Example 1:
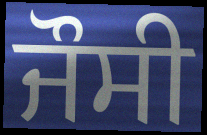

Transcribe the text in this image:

ਜੌਸੀ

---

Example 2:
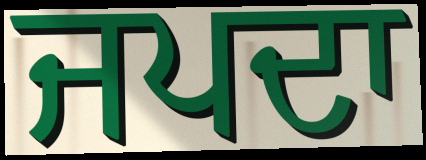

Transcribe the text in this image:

ਜਪਦਾ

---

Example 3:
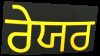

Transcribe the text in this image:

ਰੇਯਰ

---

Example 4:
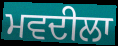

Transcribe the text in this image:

ਮਵਦੀਲਾ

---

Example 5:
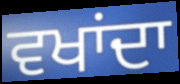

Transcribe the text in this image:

ਵਖਾਂਦਾ